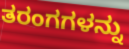
ತರಂಗಗಳನ್ನು